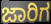
ಜಾರಿಗ